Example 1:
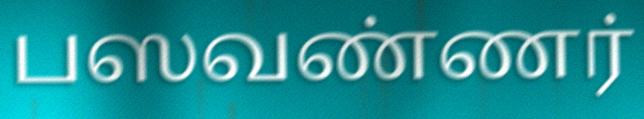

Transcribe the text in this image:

பஸவண்ணர்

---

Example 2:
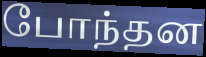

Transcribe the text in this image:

போந்தன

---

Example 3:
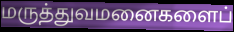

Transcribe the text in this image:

மருத்துவமனைகளைப்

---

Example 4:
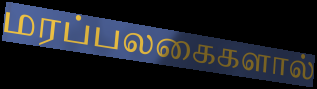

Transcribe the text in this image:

மரப்பலகைகளால்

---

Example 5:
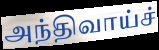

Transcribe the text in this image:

அந்திவாய்ச்